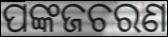
ପଙ୍କଜଚରଣ